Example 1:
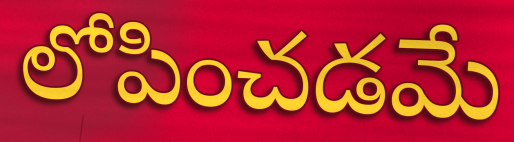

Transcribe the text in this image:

లోపించడమే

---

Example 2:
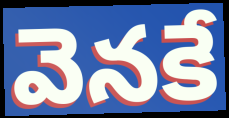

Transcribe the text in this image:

వెనకే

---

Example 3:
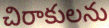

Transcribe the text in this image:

చిరాకులను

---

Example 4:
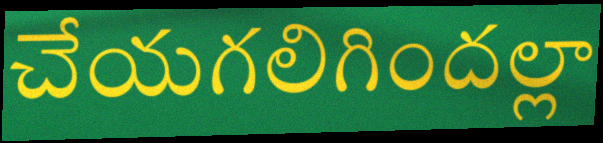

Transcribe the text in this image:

చేయగలిగిందల్లా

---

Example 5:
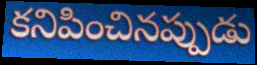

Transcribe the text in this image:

కనిపించినప్పుడు